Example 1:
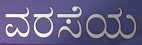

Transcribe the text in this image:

ವರಸೆಯ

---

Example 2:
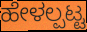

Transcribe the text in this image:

ಹೇಳಲ್ಪಟ್ಟ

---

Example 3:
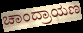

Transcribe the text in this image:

ಚಾಂದ್ರಾಯಣ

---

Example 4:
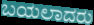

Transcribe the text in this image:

ಬಯಲಾದರು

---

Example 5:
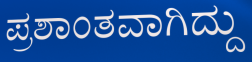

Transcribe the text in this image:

ಪ್ರಶಾಂತವಾಗಿದ್ದು